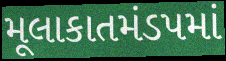
મૂલાકાતમંડપમાં